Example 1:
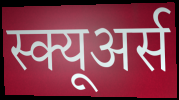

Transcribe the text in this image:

स्क्यूअर्स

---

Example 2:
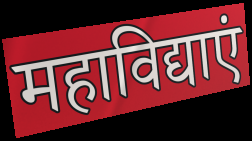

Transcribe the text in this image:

महाविद्याएं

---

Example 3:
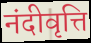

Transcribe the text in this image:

नंदीवृत्ति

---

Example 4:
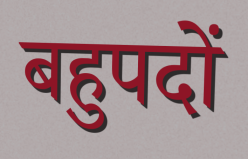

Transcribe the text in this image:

बहुपदों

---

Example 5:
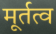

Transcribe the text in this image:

मूर्तत्व